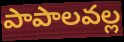
పాపాలవల్ల